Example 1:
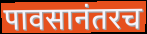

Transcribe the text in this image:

पावसानंतरच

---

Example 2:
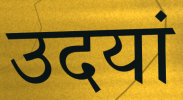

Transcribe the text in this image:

उदयां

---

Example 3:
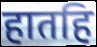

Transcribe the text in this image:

हातहि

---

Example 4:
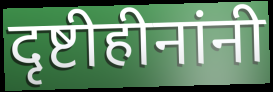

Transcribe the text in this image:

दृष्टीहीनांनी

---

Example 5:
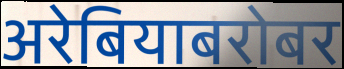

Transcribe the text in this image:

अरेबियाबरोबर